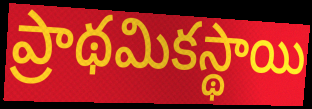
ప్రాథమికస్థాయి